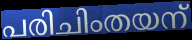
പരിചിംതയന്